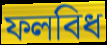
ফলবিধ